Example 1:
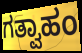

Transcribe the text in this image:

ಗತ್ವಾಹಂ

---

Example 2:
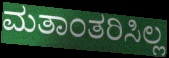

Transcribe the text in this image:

ಮತಾಂತರಿಸಿಲ್ಲ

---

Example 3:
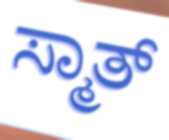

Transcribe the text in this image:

ಸ್ಮಾತ್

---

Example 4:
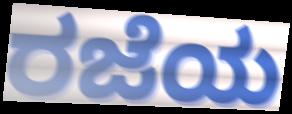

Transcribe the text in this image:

ರಜೆಯ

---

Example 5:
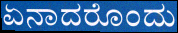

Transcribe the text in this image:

ಏನಾದರೊಂದು